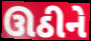
ઊઠીને